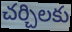
చర్చిలకు